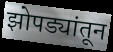
झोपड्यांतून